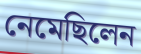
নেমেছিলেন